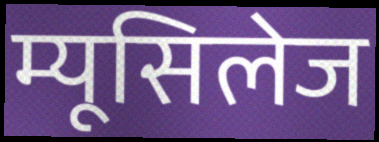
म्यूसिलेज